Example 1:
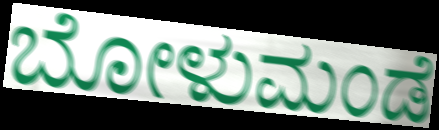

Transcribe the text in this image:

ಬೋಳುಮಂಡೆ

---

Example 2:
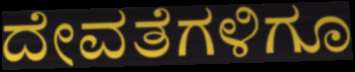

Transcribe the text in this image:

ದೇವತೆಗಳಿಗೂ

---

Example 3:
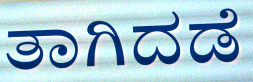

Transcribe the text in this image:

ತಾಗಿದಡೆ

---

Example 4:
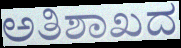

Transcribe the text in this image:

ಅತಿಶಾಖದ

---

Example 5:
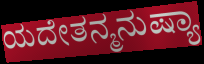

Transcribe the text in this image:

ಯದೇತನ್ಮನುಷ್ಯಾ